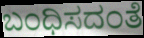
ಬಂಧಿಸದಂತೆ